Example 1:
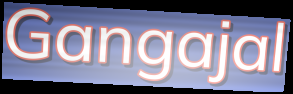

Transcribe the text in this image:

Gangajal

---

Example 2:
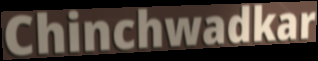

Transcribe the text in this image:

Chinchwadkar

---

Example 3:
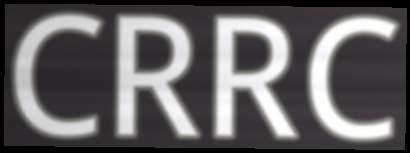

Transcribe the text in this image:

CRRC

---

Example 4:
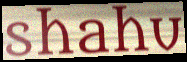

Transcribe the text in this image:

shahu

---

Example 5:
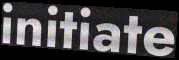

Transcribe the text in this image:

initiate